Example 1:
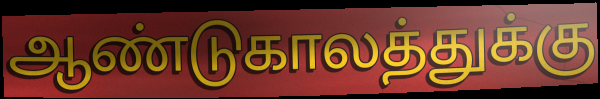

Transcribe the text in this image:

ஆண்டுகாலத்துக்கு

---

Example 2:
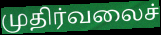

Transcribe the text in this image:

முதிர்வலைச்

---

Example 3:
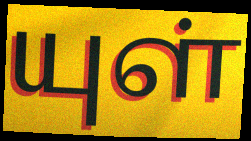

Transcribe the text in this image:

யுள்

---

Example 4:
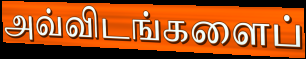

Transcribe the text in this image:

அவ்விடங்களைப்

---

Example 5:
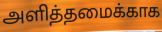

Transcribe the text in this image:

அளித்தமைக்காக